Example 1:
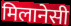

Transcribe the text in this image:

मिलानेसी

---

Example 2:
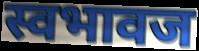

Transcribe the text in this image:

स्वभावज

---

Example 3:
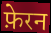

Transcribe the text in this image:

फ़ेरन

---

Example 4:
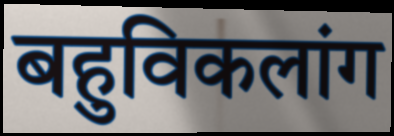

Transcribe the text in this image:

बहुविकलांग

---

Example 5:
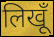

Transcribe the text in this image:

लिखूँ